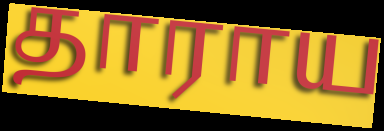
தாராய